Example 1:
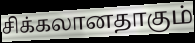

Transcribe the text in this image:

சிக்கலானதாகும்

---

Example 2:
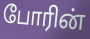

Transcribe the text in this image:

போரின்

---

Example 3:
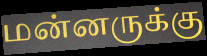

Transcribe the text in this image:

மன்னருக்கு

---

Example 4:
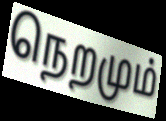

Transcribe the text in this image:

நெறமும்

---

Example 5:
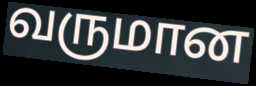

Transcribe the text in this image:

வருமான